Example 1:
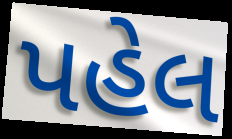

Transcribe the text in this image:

પહેલ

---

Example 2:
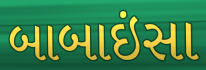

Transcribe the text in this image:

બાબાઇંસા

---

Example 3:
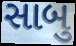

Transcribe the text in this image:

સાબુ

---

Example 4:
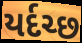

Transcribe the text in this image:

યર્દચ્છ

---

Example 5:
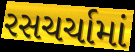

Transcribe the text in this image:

રસચર્ચામાં